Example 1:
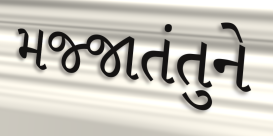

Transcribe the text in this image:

મજ્જાતંતુને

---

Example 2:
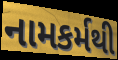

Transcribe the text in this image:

નામકર્મથી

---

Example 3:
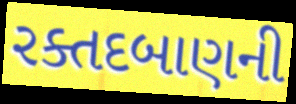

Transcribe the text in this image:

રક્તદબાણની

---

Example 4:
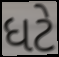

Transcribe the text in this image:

ધટે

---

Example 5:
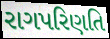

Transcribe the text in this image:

રાગપરિણતિ